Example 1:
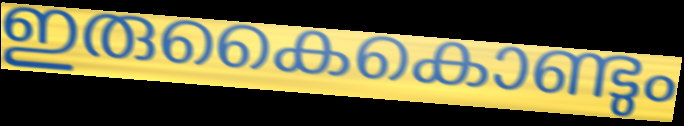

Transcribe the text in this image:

ഇരുകൈകൊണ്ടും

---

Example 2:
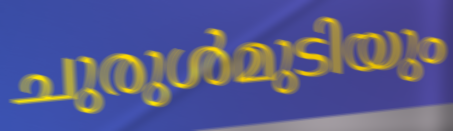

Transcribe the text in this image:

ചുരുൾമുടിയും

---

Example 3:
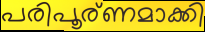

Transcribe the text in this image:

പരിപൂര്ണമാക്കി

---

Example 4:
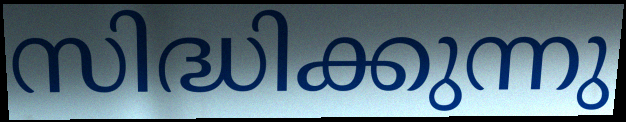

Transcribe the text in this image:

സിദ്ധിക്കുന്നു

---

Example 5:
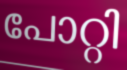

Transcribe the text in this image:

പോറ്റി